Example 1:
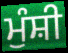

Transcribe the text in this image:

ਮੁੰਸ਼ੀ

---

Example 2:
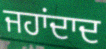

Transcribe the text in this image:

ਜਹਾਂਦਾਦ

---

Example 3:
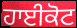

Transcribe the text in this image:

ਹਾਈਕੋਟ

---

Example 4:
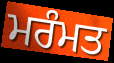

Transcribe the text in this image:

ਮਰੰਮਤ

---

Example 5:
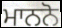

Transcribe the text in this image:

ਮਾਨਨੋ